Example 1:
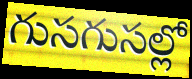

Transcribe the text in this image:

గుసగుసల్లో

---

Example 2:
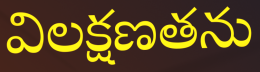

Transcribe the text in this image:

విలక్షణతను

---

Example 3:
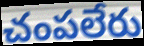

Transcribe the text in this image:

చంపలేరు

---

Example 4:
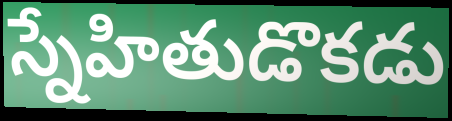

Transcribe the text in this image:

స్నేహితుడొకడు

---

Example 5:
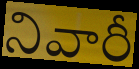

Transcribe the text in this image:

నివారీ